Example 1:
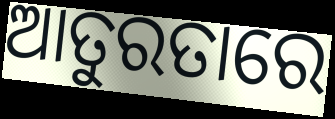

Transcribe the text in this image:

ଆତୁରତାରେ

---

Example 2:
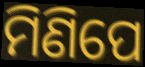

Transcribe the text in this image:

ମିଣିପେ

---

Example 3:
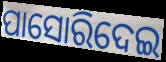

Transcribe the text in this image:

ପାସୋରିଦେଇ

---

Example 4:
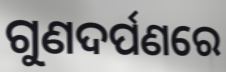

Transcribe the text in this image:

ଗୁଣଦର୍ପଣରେ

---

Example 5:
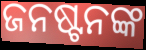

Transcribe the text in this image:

ଜନଷ୍ଟନଙ୍କ